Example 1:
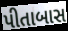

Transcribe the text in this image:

પીતાબાસ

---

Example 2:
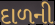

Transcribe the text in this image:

દાળની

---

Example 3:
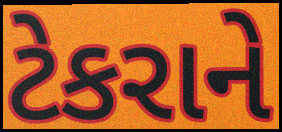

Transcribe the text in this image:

ટેકરાને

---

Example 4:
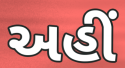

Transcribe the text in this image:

અહીઁ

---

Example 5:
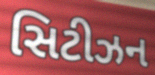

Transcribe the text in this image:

સિટીઝન